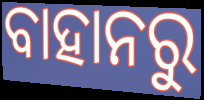
ବାହାନରୁ